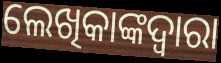
ଲେଖିକାଙ୍କଦ୍ୱାରା